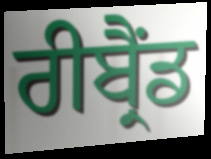
ਰੀਬ੍ਰੈਂਡ